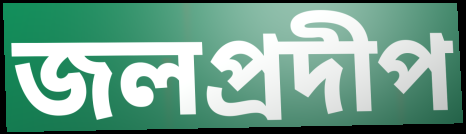
জলপ্রদীপ